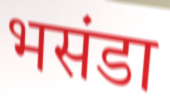
भसंडा